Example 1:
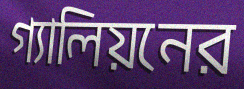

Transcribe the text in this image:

গ্যালিয়নের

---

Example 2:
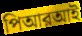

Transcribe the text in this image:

পিআরআই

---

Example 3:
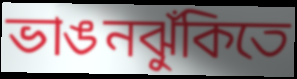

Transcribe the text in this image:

ভাঙনঝুঁকিতে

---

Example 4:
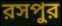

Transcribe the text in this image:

রসপুর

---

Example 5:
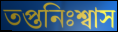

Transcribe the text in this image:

তপ্তনিঃশ্বাস